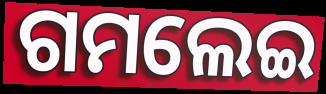
ଗମଲେଇ